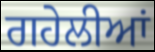
ਗਹੇਲੀਆਂ